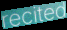
recited